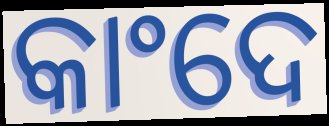
କାଂଦେ